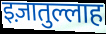
इज़ातुल्लाह